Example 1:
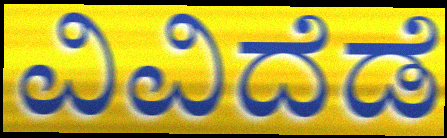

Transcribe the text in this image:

ವಿವಿದೆಡೆ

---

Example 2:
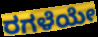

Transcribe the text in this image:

ರಗಳೆಯೇ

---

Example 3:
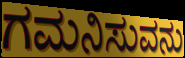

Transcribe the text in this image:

ಗಮನಿಸುವನು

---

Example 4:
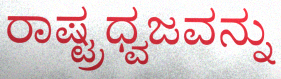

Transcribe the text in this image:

ರಾಷ್ಟ್ರಧ್ವಜವನ್ನು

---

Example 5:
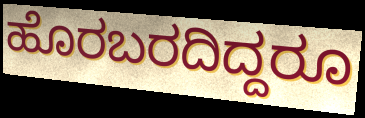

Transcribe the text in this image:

ಹೊರಬರದಿದ್ದರೂ